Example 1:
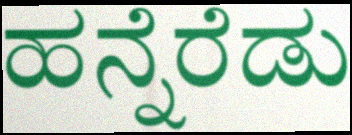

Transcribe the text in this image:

ಹನ್ನೆರೆಡು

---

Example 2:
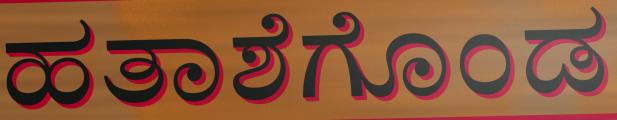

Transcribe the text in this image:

ಹತಾಶೆಗೊಂಡ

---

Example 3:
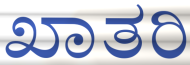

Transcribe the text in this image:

ಖಾತರಿ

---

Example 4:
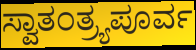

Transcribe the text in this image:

ಸ್ವಾತಂತ್ರ್ಯಪೂರ್ವ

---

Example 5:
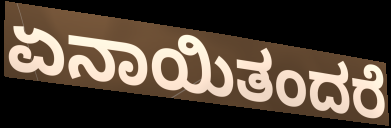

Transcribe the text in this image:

ಏನಾಯಿತಂದರೆ